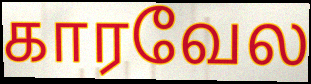
காரவேல